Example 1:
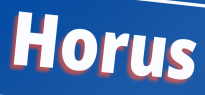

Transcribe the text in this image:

Horus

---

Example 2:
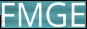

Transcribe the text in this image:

FMGE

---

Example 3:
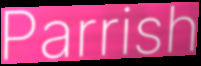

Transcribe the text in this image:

Parrish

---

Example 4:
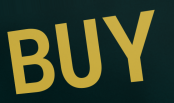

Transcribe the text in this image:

BUY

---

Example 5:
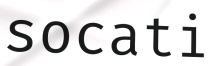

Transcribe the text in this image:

socati